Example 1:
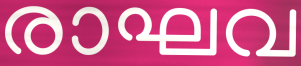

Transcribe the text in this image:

രാഘവ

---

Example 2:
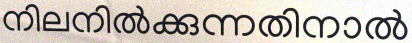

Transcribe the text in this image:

നിലനിൽക്കുന്നതിനാൽ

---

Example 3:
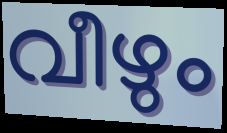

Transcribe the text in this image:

വീഴും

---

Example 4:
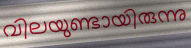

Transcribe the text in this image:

വിലയുണ്ടായിരുന്നു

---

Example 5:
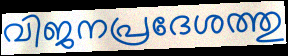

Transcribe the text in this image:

വിജനപ്രദേശത്തു